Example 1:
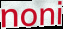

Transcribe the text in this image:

noni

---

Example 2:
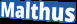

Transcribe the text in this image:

Malthus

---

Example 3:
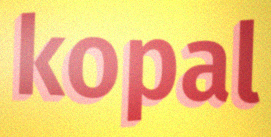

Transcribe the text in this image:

kopal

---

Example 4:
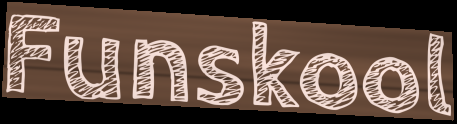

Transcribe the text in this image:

Funskool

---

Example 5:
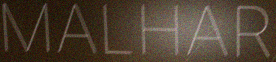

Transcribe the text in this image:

MALHAR